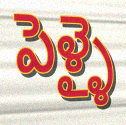
పెళ్ళై